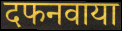
दफनवाया